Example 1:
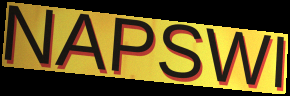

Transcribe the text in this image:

NAPSWI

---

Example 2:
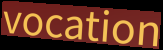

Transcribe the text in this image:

vocation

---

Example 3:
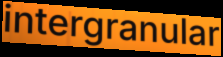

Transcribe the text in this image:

intergranular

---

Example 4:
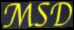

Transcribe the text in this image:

MSD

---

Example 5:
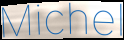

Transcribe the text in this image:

Michel